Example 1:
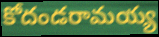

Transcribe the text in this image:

కోదండరామయ్య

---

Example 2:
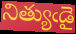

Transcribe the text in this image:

నిత్యుఁడై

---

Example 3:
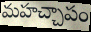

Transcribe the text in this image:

మహచ్చాపం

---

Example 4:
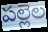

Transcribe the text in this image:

పల్లెల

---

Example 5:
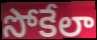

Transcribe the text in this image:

సోకేలా